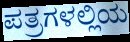
ಪತ್ರಗಳಲ್ಲಿಯ